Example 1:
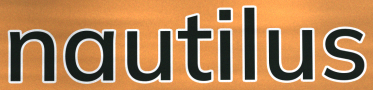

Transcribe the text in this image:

nautilus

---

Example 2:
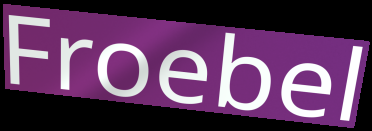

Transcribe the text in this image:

Froebel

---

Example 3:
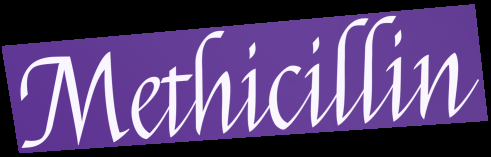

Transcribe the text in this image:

Methicillin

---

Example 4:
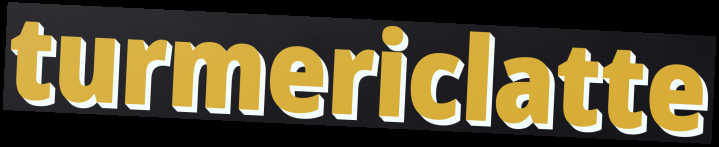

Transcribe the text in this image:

turmericlatte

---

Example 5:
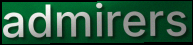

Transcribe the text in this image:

admirers